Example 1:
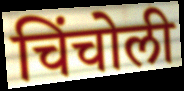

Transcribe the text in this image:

चिंचोली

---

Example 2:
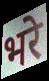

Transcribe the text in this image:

भरे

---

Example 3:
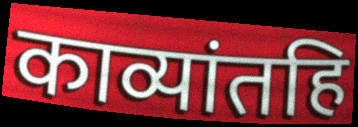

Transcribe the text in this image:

काव्यांतहि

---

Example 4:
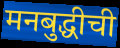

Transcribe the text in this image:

मनबुद्धीची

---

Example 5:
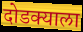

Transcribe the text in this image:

दोडक्याला